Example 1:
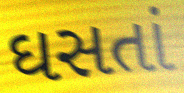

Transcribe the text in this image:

ઘસતાં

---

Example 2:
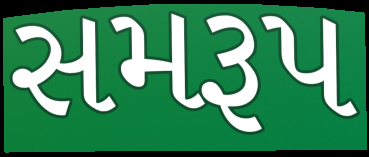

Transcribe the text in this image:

સમરૂપ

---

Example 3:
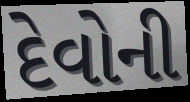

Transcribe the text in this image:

દેવોની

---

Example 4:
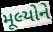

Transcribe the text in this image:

મૂલ્યોને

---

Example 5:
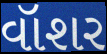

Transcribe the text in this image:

વૉશર